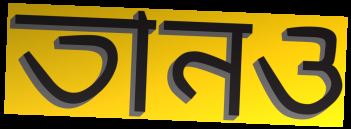
তানও